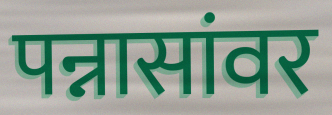
पन्नासांवर